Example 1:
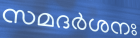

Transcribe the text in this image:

സമദർശനഃ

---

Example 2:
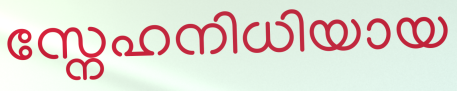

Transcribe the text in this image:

സ്നേഹനിധിയായ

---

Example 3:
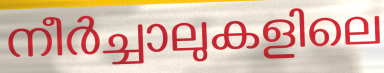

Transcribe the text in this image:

നീർച്ചാലുകളിലെ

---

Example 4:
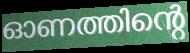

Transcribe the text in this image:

ഓണത്തിന്റെ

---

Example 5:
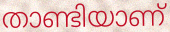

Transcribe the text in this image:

താണ്ടിയാണ്